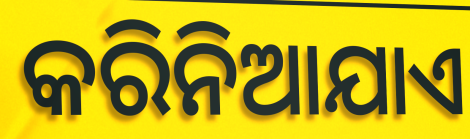
କରିନିଆଯାଏ